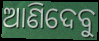
ଆଣିଦେବୁ